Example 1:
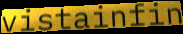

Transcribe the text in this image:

vistainfin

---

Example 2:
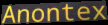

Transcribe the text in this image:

Anontex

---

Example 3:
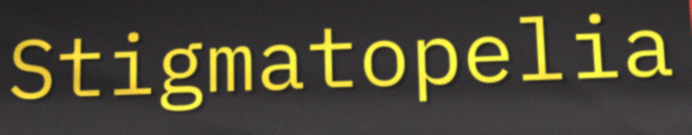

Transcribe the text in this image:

Stigmatopelia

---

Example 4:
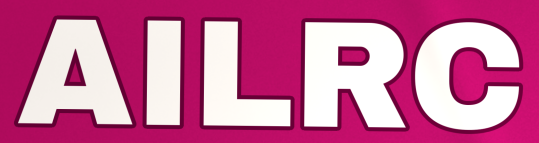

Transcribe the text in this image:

AILRC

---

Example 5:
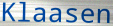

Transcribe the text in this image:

Klaasen